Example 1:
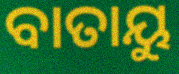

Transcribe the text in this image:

ବାତାୟୁ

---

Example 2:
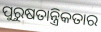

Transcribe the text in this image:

ପୁରୁଷତାନ୍ତ୍ରିକତାର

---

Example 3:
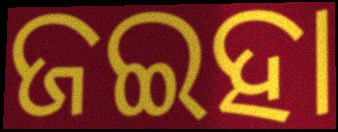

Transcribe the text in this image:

ଜଇହା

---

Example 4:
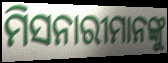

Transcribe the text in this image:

ମିସନାରୀମାନଙ୍କୁ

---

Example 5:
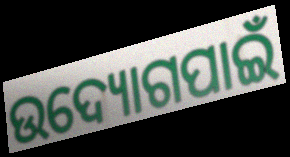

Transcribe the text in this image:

ଉଦ୍ୟୋଗପାଇଁ